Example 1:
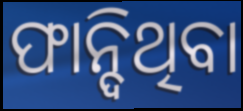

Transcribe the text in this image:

ଫାନ୍ଦିଥିବା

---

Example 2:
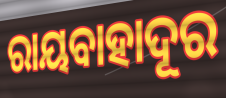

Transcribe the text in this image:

ରାୟବାହାଦୂର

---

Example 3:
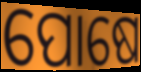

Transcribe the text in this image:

ପୋଷେ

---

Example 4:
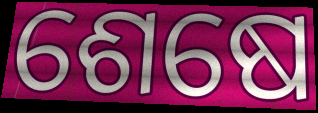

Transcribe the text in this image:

ଶେଷେ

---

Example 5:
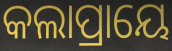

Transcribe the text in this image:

କଲାପ୍ରାୟେ